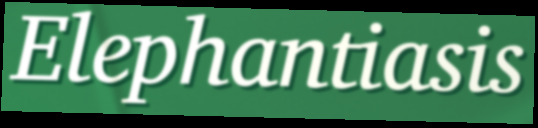
Elephantiasis